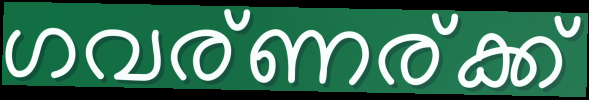
ഗവര്ണര്ക്ക്